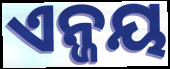
ଏନ୍ଜୟ